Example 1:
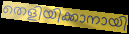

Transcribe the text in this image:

തെളിയിക്കാനായി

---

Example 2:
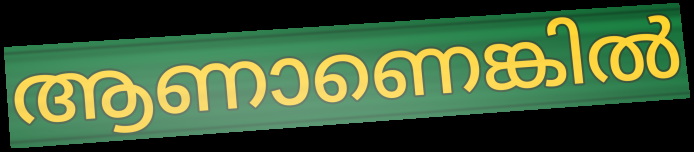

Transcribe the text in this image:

ആണാണെങ്കിൽ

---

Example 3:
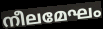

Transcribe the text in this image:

നീലമേഘം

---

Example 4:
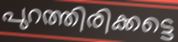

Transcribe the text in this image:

പുറത്തിരിക്കട്ടെ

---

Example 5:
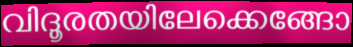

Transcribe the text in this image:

വിദൂരതയിലേക്കെങ്ങോ